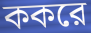
ককরে